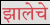
झालेचे